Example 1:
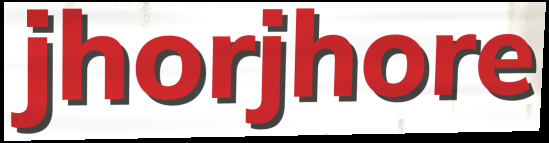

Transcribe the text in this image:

jhorjhore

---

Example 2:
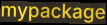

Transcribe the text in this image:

mypackage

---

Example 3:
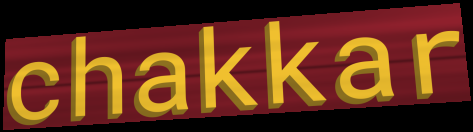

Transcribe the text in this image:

chakkar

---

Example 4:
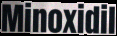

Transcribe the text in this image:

Minoxidil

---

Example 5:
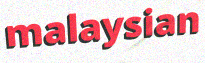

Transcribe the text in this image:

malaysian